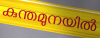
കുന്തമുനയിൽ